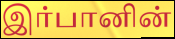
இர்பானின்